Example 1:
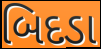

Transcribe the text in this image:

બિદડા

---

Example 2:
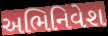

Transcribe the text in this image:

અભિનિવેશ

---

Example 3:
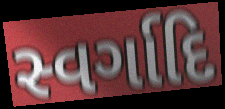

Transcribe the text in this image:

સ્વર્ગાદિ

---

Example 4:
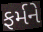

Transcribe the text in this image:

ફર્મને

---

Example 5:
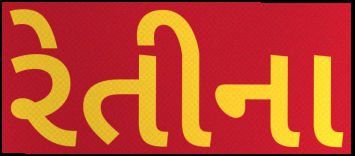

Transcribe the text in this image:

રેતીના